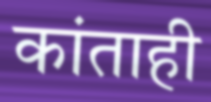
कांताही